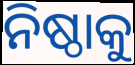
ନିଷ୍ଠାକୁ